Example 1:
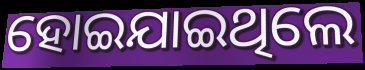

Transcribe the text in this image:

ହୋଇଯାଇଥିଲେ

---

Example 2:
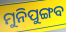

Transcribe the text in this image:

ମୁନିପୁଙ୍ଗବ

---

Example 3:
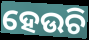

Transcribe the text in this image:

ହେଉଚି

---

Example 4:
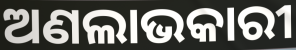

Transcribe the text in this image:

ଅଣଲାଭକାରୀ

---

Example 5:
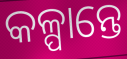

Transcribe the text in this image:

କଳ୍ପାନ୍ତେ